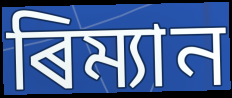
ৰিম্যান